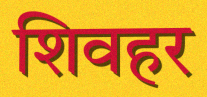
शिवहर